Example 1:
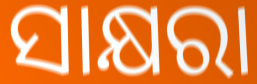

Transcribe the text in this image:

ସାକ୍ଷରା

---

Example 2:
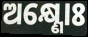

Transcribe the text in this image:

ଅକ୍ଷ୍ଣୋଃ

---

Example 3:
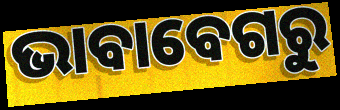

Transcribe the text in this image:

ଭାବାବେଗରୁ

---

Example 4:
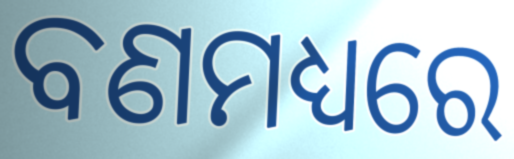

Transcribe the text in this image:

ବଣମଧ୍ଯରେ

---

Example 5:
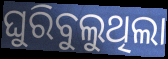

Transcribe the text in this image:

ଘୁରିବୁଲୁଥିଲା